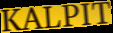
KALPIT